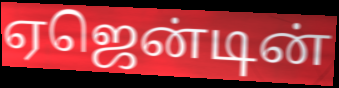
ஏஜென்டின்